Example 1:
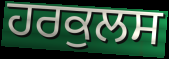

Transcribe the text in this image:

ਹਰਕੁਲਸ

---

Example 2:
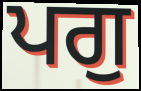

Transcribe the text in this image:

ਪਗੁ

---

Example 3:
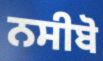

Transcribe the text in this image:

ਨਸੀਬੋ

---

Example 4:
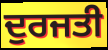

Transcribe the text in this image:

ਦੁਰਜਤੀ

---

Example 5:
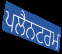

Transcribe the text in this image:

ਪਲੈਨਟਰਮ